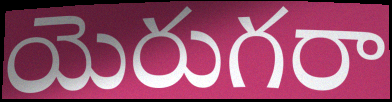
యెరుగరా